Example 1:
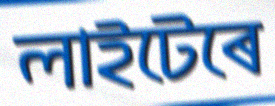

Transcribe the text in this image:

লাইটেৰে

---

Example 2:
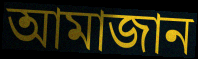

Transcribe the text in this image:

আমাজান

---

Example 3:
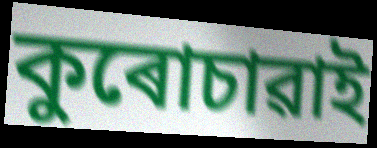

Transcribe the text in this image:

কুৰোচাৱাই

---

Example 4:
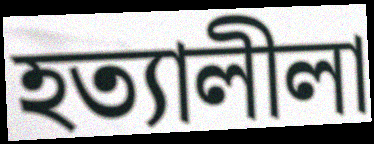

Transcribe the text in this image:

হত্যালীলা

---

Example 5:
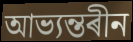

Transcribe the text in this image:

আভ্যন্তৰীন